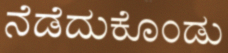
ನೆಡೆದುಕೊಂಡು